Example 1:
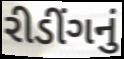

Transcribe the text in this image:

રીડીંગનું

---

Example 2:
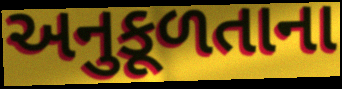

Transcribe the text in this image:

અનુકૂળતાના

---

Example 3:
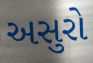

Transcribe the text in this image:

અસુરો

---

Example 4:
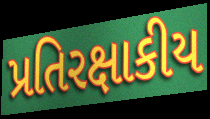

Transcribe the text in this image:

પ્રતિરક્ષાકીય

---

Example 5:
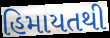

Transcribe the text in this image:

હિમાયતથી